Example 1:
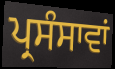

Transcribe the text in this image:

ਪ੍ਰਸੰਸਾਵਾਂ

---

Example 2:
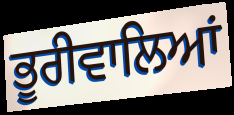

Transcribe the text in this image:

ਭੂਰੀਵਾਲਿਆਂ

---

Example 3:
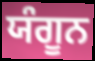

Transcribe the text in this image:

ਯੰਗੂਨ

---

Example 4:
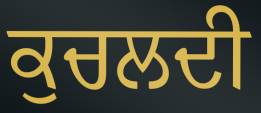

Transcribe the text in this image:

ਕੁਚਲਦੀ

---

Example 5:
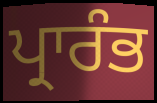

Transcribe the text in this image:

ਪ੍ਰਾਰੰਭ